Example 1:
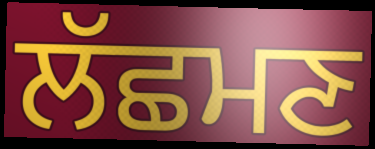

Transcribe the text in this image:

ਲੱਛਮਣ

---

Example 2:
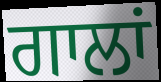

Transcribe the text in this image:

ਗਾਲਾਂ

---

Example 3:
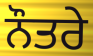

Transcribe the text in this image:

ਨੌਤਰੇ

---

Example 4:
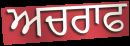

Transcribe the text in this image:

ਅਚਰਾਫ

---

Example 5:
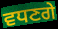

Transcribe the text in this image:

ਵਧਣਗੇ